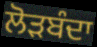
ਲੋੜਬੰਦਾ